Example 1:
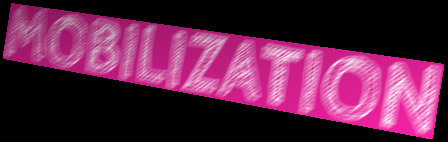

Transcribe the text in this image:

MOBILIZATION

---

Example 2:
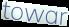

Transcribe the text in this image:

towar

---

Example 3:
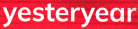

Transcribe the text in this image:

yesteryear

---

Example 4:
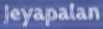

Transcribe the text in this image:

Jeyapalan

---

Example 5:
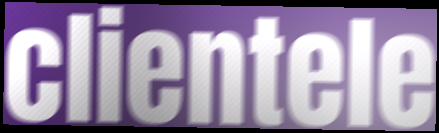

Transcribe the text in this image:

clientele